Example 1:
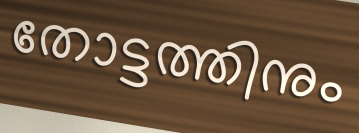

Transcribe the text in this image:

തോട്ടത്തിനും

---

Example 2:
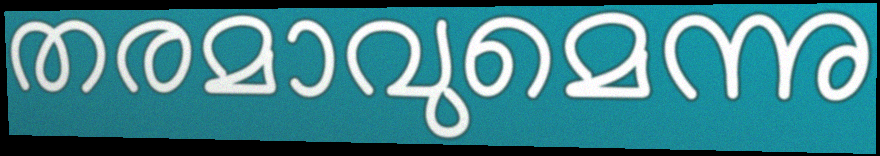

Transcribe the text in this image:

തരമാവുമെന്നു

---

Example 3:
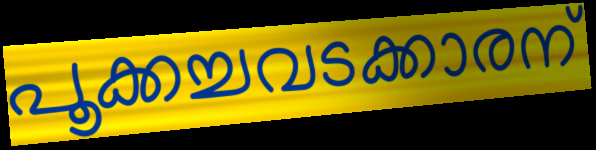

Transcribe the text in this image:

പൂക്കച്ചവടക്കാരന്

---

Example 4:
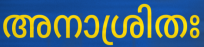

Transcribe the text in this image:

അനാശ്രിതഃ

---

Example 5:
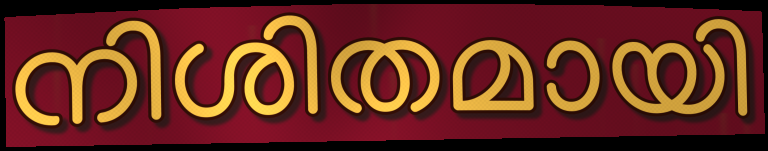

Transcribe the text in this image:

നിശിതമായി